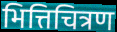
भित्तिचित्रण